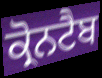
ਕ੍ਰੋਨਟੈਬ